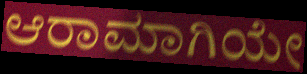
ಆರಾಮಾಗಿಯೇ